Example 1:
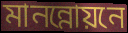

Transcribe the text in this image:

মানন্নোয়নে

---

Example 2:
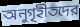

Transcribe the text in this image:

অনুগৃহীতদের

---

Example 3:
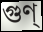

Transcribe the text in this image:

গুণ্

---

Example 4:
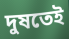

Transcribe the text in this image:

দুষতেই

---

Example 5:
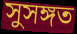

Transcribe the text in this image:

সুসঙ্গত